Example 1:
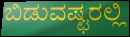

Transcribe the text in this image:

ಬಿಡುವಷ್ಟರಲ್ಲಿ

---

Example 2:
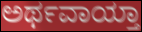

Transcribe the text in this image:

ಅರ್ಥವಾಯ್ತಾ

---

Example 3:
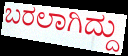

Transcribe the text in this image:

ಬರಲಾಗಿದ್ದು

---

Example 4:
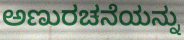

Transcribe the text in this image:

ಅಣುರಚನೆಯನ್ನು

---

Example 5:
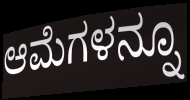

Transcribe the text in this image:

ಆಮೆಗಳನ್ನೂ